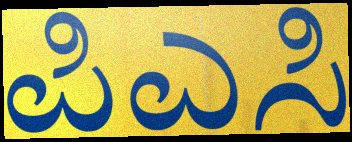
ಪಿಎಸಿ